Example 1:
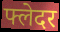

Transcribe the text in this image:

फ्लेदर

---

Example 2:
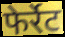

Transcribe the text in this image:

फेर्रेट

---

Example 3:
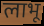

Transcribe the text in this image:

लाभू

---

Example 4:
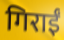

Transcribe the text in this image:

गिराईं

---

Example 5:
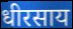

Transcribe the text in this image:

धीरसाय